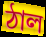
ঠাল